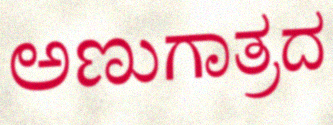
ಅಣುಗಾತ್ರದ